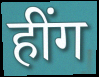
हींग